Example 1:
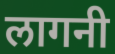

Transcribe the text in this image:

लागनी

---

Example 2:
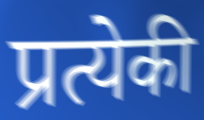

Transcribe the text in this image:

प्रत्येकी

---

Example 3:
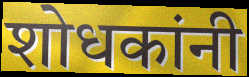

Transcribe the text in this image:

शोधकांनी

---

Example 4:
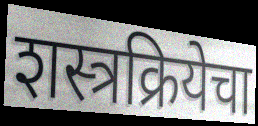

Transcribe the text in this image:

शस्त्रक्रियेचा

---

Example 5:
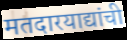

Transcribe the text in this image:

मतदारयाद्यांची